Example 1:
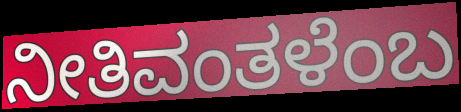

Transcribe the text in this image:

ನೀತಿವಂತಳೆಂಬ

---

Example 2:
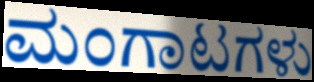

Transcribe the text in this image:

ಮಂಗಾಟಗಳು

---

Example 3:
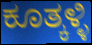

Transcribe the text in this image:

ಕೂತ್ಕಳ್ಳಿ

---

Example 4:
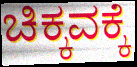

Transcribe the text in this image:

ಚಿಕ್ಕವಕ್ಕೆ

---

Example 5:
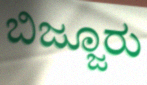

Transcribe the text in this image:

ಬಿಜ್ಜೂರು